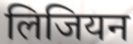
लिजियन